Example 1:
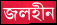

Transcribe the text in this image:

জলহীন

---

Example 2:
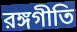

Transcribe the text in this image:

রঙ্গগীতি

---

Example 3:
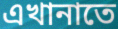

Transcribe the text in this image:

এখানাতে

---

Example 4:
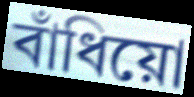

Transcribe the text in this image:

বাঁধিয়ো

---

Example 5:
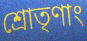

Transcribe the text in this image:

শ্রোতৃণাং